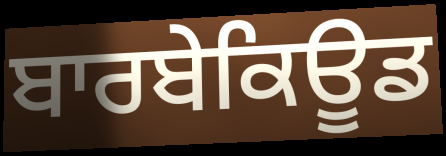
ਬਾਰਬੇਕਿਊਡ